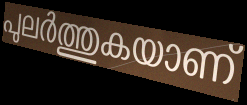
പുലർത്തുകയാണ്